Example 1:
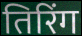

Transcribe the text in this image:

तिरिंग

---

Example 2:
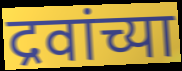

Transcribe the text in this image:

द्रवांच्या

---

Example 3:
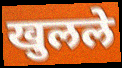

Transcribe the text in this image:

खुलले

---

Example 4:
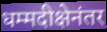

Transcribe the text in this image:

धम्मदीक्षेनंतर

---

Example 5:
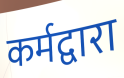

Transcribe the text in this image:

कर्मद्वारा